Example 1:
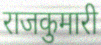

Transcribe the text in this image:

राजकुमारी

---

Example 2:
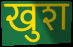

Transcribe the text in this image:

खुश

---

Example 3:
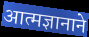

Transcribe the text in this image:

आत्मज्ञानाने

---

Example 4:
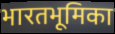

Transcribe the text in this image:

भारतभूमिका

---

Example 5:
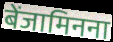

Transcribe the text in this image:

बेंजामिनना